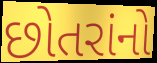
છોતરાંનો